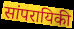
सांपरायिकी